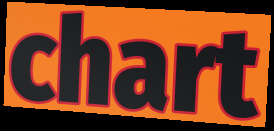
chart